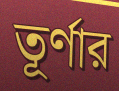
তূর্ণার